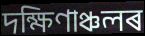
দক্ষিণাঞ্চলৰ